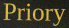
Priory